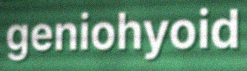
geniohyoid